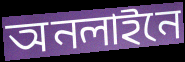
অনলাইনে